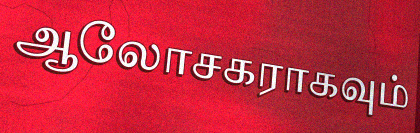
ஆலோசகராகவும்